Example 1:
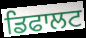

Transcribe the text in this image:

ਡਿਫਾਲਟ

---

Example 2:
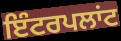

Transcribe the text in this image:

ਇੰਟਰਪਲਾਂਟ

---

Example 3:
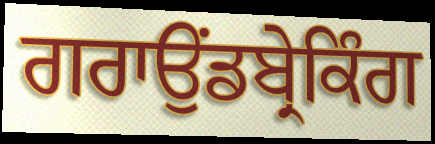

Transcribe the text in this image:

ਗਰਾਉਂਡਬ੍ਰੇਕਿੰਗ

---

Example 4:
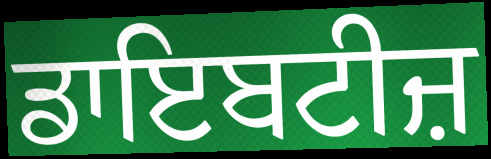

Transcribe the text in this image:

ਡਾਇਬਟੀਜ਼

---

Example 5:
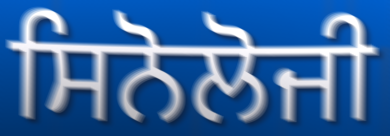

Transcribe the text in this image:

ਸਿਨੋਲੋਜੀ